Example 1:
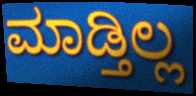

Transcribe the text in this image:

ಮಾಡ್ತಿಲ್ಲ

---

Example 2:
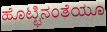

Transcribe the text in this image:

ಹೊಟ್ಟಿನಂತೆಯೂ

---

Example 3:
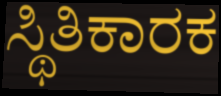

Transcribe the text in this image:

ಸ್ಥಿತಿಕಾರಕ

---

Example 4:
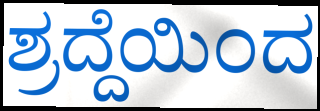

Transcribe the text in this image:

ಶ್ರದ್ದೆಯಿಂದ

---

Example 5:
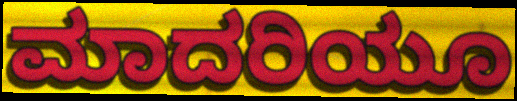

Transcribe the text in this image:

ಮಾದರಿಯೂ